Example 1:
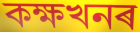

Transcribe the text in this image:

কক্ষখনৰ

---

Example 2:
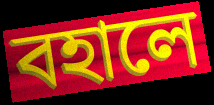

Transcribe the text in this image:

বহালে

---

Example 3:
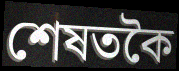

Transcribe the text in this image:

শেষতকৈ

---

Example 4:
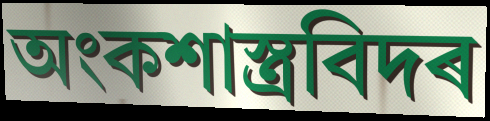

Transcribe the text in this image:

অংকশাস্ত্ৰবিদৰ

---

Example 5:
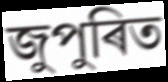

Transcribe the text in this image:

জুপুৰিত